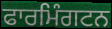
ਫਾਰਮਿੰਗਟਨ